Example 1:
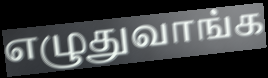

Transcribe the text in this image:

எழுதுவாங்க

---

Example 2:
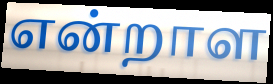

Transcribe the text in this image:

என்றாள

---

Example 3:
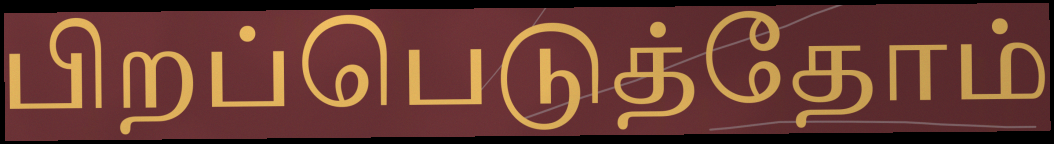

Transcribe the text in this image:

பிறப்பெடுத்தோம்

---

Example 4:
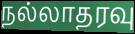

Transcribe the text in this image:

நல்லாதரவு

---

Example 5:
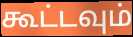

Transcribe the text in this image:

கூட்டவும்